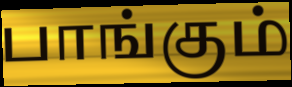
பாங்கும்